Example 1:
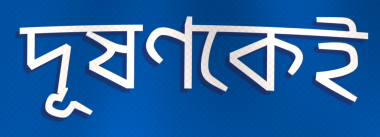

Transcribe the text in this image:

দূষণকেই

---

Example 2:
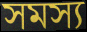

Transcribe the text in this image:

সমস্য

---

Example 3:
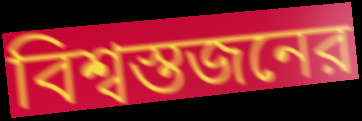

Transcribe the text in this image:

বিশ্বস্তজনের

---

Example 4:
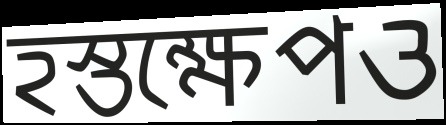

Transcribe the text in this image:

হস্তক্ষেপও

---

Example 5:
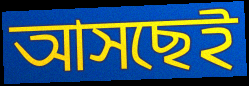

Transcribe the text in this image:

আসছেই